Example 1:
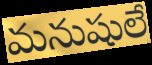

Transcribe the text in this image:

మనుషులే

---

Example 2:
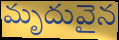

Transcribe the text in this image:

మృదువైన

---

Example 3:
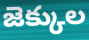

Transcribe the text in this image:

జెక్కుల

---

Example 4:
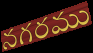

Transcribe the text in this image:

నగరము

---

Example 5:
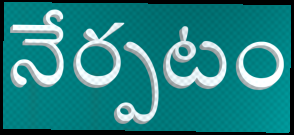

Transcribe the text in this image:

నేర్పటం